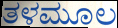
ತಳಮೂಲ